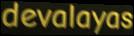
devalayas